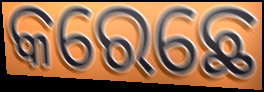
କରେଛେ